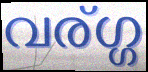
വര്ഗ്ഗ